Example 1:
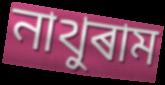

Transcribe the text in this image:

নাথুৰাম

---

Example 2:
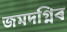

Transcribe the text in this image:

জমদগ্নিৰ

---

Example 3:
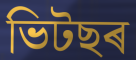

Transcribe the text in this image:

ভিটছৰ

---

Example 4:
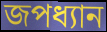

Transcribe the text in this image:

জপধ্যান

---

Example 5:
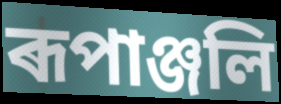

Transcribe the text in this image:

ৰূপাঞ্জলি